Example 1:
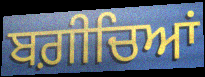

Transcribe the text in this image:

ਬਗ਼ੀਚਿਆਂ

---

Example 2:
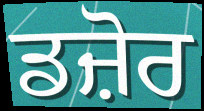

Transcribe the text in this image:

ਡਜ਼ੋਰ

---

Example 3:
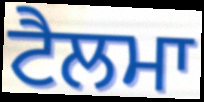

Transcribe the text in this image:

ਟੈਲਮਾ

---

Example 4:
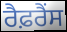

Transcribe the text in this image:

ਰੈਫ਼ਰੈਂਸ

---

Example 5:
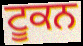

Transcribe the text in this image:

ਟੂਕਨ